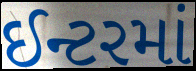
ઈન્ટરમાં